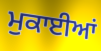
ਮੁਕਾਈਆਂ